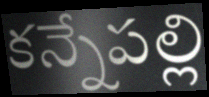
కన్నేపల్లి